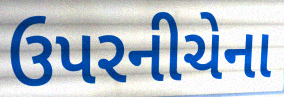
ઉપરનીચેના